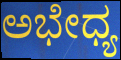
ಅಭೇಧ್ಯ